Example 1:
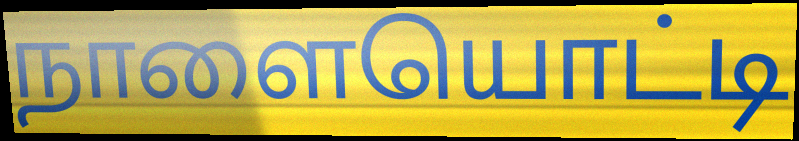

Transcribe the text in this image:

நாளையொட்டி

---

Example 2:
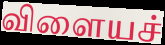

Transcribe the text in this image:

விளையச்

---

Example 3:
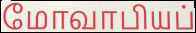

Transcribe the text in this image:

மோவாபியப்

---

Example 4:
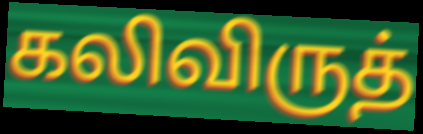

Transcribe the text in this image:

கலிவிருத்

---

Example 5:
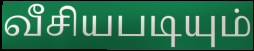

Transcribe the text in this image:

வீசியபடியும்